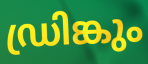
ഡ്രിങ്കും